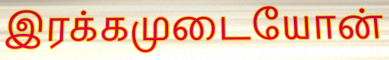
இரக்கமுடையோன்